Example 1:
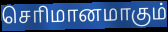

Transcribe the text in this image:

செரிமானமாகும்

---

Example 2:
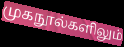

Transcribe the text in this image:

முகநூல்களிலும்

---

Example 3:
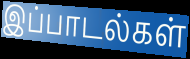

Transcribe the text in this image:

இப்பாடல்கள்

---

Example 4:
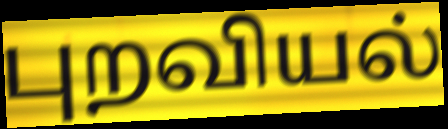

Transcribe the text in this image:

புறவியல்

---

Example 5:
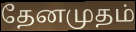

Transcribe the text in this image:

தேனமுதம்